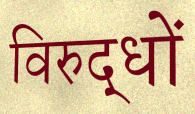
विरुद्धों